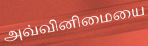
அவ்வினிமையை